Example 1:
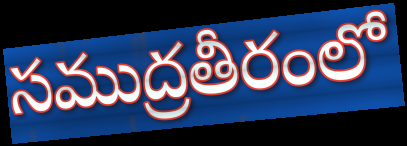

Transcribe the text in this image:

సముద్రతీరంలో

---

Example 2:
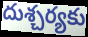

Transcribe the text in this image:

దుశ్చర్యకు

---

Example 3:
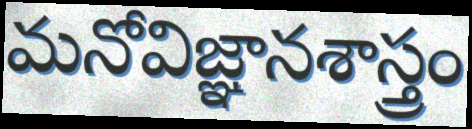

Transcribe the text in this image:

మనోవిజ్ఞానశాస్త్రం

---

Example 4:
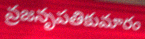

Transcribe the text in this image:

వ్రజనృపతికుమారం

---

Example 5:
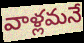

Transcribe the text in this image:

వాళ్లమనే